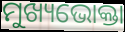
ମୁଖ୍ୟଭୋକ୍ତା